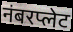
नंबरप्लेट